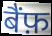
बैंफ़